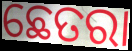
ଛେତରା